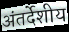
अंतर्देशीय